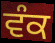
ਵੰਕ